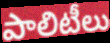
పాలిటీలు